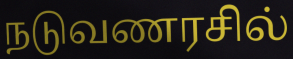
நடுவணரசில்